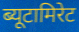
ब्यूटामिरेट